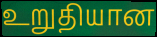
உறுதியான